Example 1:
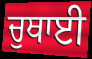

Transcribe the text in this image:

ਚੁਥਾਈ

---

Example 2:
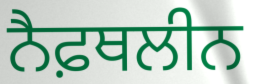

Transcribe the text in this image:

ਨੈਫ਼ਥਲੀਨ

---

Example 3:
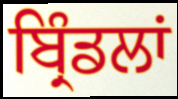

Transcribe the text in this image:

ਬ੍ਰਿੰਡਲਾਂ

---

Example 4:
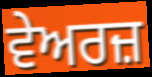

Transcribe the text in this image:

ਵੇਅਰਜ਼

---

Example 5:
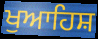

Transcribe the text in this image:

ਖੁਆਹਿਸ਼